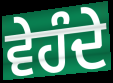
ਵੇਹੰਦੇ